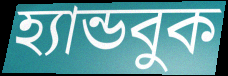
হ্যান্ডবুক